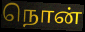
நொன்